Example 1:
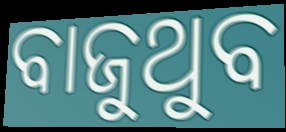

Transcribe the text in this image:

ବାଜୁଥୁବ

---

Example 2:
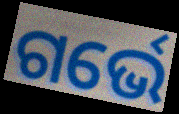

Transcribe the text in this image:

ଗର୍ଭେ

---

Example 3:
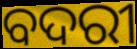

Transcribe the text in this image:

ବଦରୀ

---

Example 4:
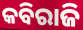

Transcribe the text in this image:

କବିରାଜି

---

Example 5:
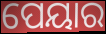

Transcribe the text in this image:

ପେୟାର